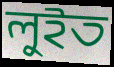
লুইত